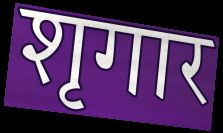
शृगार